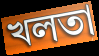
খলতা